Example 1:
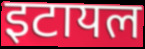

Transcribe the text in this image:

इटायल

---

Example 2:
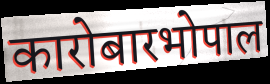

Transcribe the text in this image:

कारोबारभोपाल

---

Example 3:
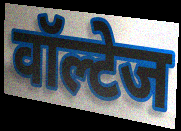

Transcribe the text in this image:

वॉल्टेज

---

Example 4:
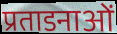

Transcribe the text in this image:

प्रताडनाओं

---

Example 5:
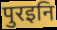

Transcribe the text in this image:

पुरइनि